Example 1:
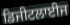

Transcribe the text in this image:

ਡਿਜੀਟਲਾਈਜ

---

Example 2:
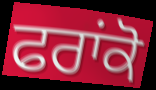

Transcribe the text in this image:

ਫਰਾਂਕੋ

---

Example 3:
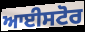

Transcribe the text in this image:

ਆਈਸਟੋਰ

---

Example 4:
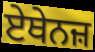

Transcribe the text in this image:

ਏਥੇਨਜ਼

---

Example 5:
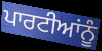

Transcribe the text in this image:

ਪਾਰਟੀਆਂਨੂੰ